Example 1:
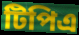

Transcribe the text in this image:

টিপিএ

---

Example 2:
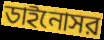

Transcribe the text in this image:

ডাইনোসর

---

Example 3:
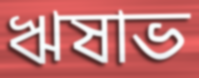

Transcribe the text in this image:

ঋষাভ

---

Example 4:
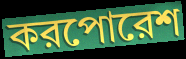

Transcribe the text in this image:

করপোরেশ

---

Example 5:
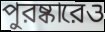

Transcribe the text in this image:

পুরষ্কারেও